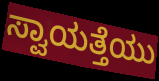
ಸ್ವಾಯತ್ತೆಯು